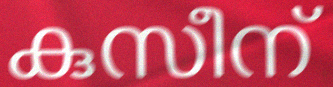
കുസീന്